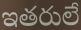
ఇతరులే